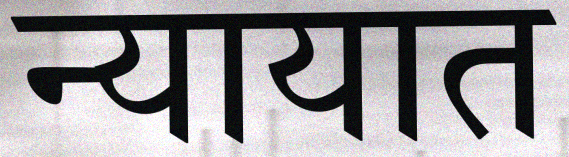
न्यायात